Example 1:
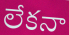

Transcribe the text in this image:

లేకనా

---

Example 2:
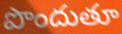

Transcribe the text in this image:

పొందుతూ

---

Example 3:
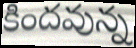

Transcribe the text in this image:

కిందవున్న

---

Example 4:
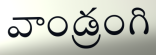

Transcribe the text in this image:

వాండ్రంగి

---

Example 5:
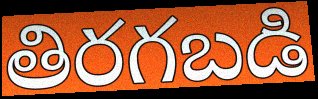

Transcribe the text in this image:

తిరగబడి